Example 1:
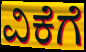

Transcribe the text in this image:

ವಿಕೆಗೆ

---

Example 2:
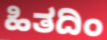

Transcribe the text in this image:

ಹಿತದಿಂ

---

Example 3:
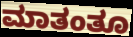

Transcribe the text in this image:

ಮಾತಂತೂ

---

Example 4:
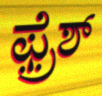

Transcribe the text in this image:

ಫ಼್ರೆಶ್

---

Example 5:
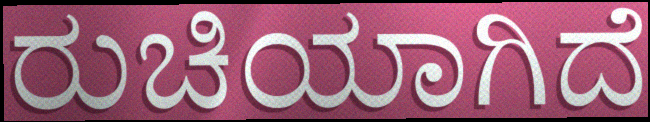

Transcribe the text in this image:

ರುಚಿಯಾಗಿದೆ